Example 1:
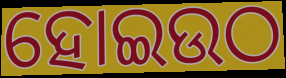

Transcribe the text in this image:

ହୋଇଉଠ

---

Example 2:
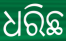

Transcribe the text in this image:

ଧରିଛ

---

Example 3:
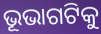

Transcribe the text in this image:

ଭୂଭାଗଟିକୁ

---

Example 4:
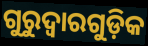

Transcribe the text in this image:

ଗୁରୁଦ୍ବାରଗୁଡ଼ିକ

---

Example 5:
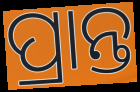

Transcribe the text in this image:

ପ୍ରାନ୍ତ